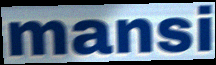
mansi